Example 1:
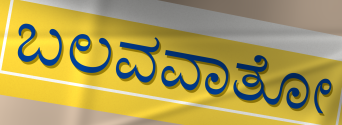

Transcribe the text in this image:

ಬಲವವಾತೋ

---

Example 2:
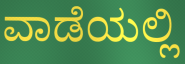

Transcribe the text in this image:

ವಾಡೆಯಲ್ಲಿ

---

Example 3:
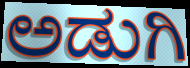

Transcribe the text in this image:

ಅಡುಗಿ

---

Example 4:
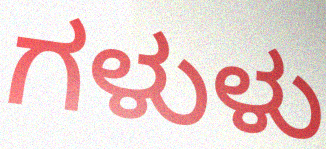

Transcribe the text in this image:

ಗಳುಳು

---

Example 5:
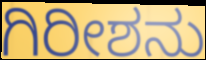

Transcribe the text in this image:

ಗಿರೀಶನು